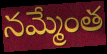
నమ్మేంత